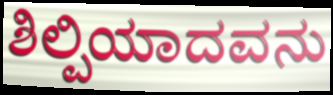
ಶಿಲ್ಪಿಯಾದವನು